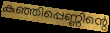
കുഞ്ഞിപ്പെണ്ണിന്റെ